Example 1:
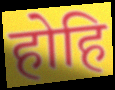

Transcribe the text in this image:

होहि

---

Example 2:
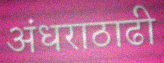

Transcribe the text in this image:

अंधराठाढी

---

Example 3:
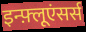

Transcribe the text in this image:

इन्फ़्लूएंसर्स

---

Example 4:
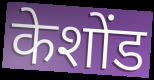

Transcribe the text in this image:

केशोंड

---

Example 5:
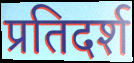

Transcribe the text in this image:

प्रतिदर्श